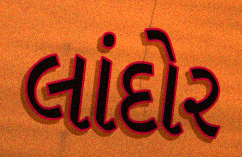
લાંદોર